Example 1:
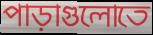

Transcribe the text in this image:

পাড়াগুলোতে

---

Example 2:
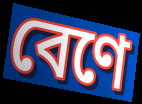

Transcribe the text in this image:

বেণে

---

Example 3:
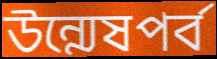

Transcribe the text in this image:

উন্মেষপর্ব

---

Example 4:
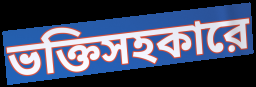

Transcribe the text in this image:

ভক্তিসহকারে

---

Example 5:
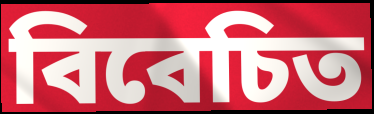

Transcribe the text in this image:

বিবেচিত